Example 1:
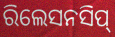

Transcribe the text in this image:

ରିଲେସନସିପ୍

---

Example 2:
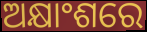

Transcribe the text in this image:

ଅକ୍ଷାଂଶରେ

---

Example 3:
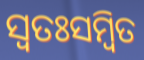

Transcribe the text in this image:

ସ୍ୱତଃସମ୍ବିତ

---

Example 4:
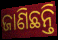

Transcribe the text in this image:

ଜାଣିଛନ୍ତି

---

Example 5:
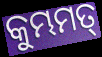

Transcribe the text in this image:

କୁମ୍ଭମତ୍